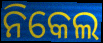
ନିକେଲ